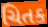
ચિતક